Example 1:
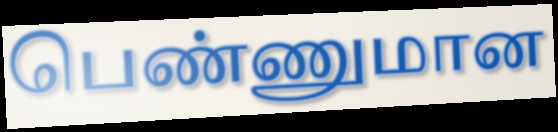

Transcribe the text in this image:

பெண்ணுமான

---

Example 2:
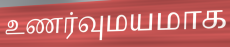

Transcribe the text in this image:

உணர்வுமயமாக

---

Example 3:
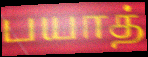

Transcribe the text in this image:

பயாத்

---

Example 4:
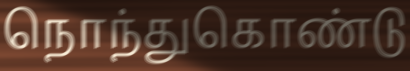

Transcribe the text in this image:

நொந்துகொண்டு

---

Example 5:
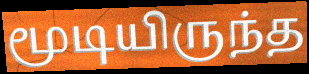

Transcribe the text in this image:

மூடியிருந்த